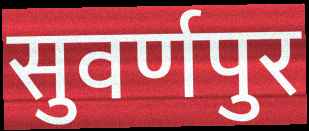
सुवर्णपुर